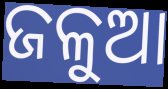
ଜଳୁଆ